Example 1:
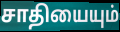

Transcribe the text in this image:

சாதியையும்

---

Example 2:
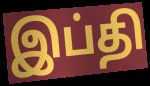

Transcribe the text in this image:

இப்தி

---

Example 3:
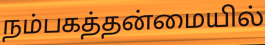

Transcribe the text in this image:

நம்பகத்தன்மையில்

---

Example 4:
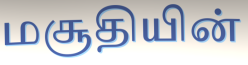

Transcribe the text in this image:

மசூதியின்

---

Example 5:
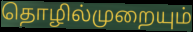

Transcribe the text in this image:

தொழில்முறையும்